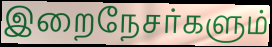
இறைநேசர்களும்